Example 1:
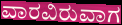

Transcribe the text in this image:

ವಾರವಿರುವಾಗ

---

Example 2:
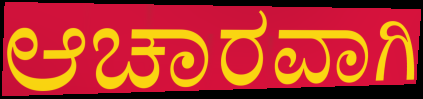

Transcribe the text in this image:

ಆಚಾರವಾಗಿ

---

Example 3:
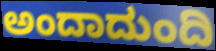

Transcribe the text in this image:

ಅಂದಾದುಂದಿ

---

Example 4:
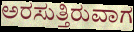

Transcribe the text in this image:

ಅರಸುತ್ತಿರುವಾಗ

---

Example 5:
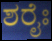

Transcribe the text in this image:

ಶರೈಃ